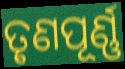
ତୃଣପୂର୍ଣ୍ଣ